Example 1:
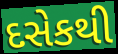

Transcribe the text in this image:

દસેકથી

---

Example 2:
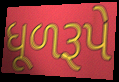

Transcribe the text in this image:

ધૂળરૂપે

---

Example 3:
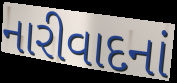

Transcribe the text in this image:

નારીવાદનાં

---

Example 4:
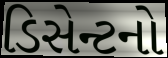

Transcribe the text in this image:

ડિસેન્ટનો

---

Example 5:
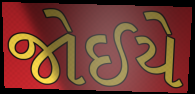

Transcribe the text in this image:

જોઈયે